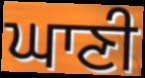
ਘਾਣੀ